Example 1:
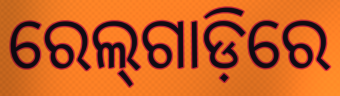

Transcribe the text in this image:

ରେଲ୍‌ଗାଡ଼ିରେ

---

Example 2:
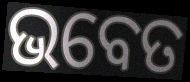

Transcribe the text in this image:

ଭବେତ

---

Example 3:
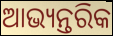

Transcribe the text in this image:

ଆଭ୍ୟନ୍ତରିକ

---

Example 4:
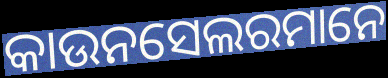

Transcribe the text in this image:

କାଉନସେଲରମାନେ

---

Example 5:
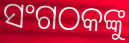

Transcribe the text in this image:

ସଂଗଠକଙ୍କୁ